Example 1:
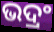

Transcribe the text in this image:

ଭଦ୍ରଂ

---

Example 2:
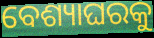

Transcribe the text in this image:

ବେଶ୍ୟାଘରକୁ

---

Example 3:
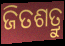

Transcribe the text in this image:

ଜିତଶତ୍ରୁ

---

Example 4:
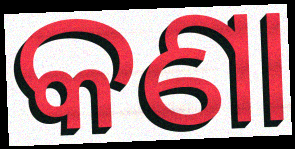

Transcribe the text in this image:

କଣା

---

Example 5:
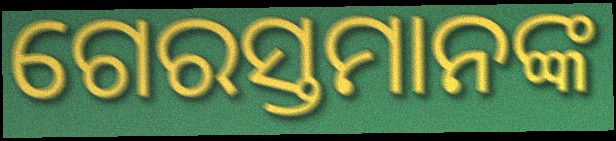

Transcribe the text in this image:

ଗେରସ୍ତମାନଙ୍କ